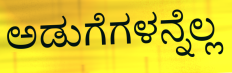
ಅಡುಗೆಗಳನ್ನೆಲ್ಲ